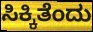
ಸಿಕ್ಕಿತೆಂದು